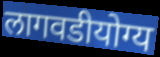
लागवडीयोग्य